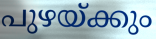
പുഴയ്ക്കും